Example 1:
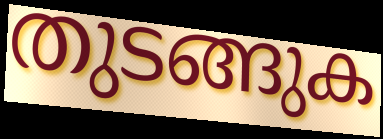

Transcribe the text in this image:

തുടങ്ങുക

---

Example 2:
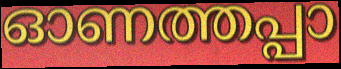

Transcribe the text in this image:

ഓണത്തപ്പാ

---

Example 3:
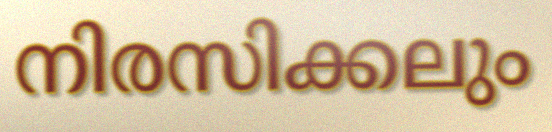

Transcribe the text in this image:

നിരസിക്കലും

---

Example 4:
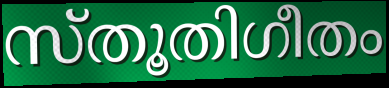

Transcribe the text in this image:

സ്തൂതിഗീതം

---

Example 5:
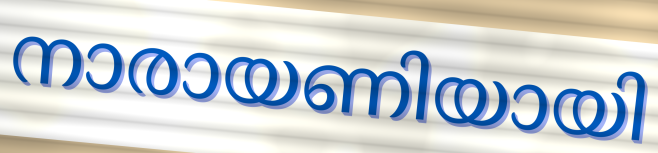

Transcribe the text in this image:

നാരായണിയായി